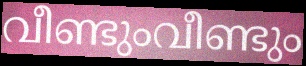
വീണ്ടുംവീണ്ടും